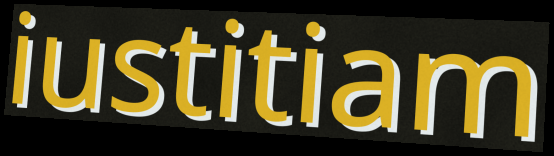
iustitiam